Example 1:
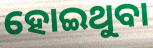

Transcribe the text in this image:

ହୋଇଥୁବା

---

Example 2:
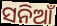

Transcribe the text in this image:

ସନିଆଁ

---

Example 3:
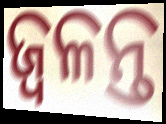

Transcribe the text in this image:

ଜ୍ଵଳନ୍ତ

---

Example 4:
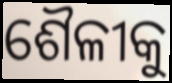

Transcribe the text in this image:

ଶୈଳୀକୁ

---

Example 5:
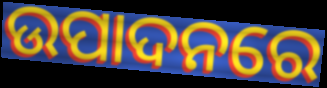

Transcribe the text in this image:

ଉପାଦନରେ